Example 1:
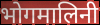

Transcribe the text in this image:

भोगमालिनी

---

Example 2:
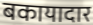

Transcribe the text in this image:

बकायादार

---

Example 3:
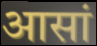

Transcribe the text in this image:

आसां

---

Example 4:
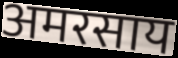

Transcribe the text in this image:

अमरसाय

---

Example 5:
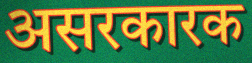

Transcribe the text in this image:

असरकारक